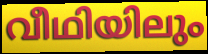
വീഥിയിലും